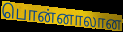
பொன்னாலான